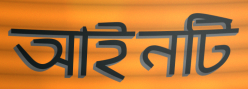
আইনটি